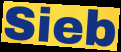
Sieb